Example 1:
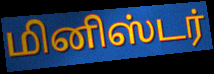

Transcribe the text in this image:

மினிஸ்டர்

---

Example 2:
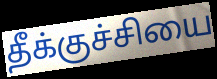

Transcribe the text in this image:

தீக்குச்சியை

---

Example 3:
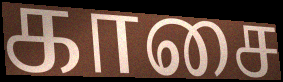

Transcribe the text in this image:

காசை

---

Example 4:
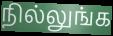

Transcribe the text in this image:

நில்லுங்க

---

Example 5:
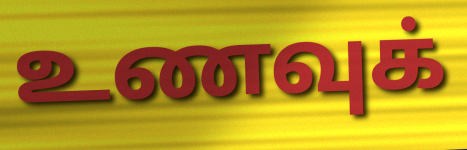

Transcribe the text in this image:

உணவுக்